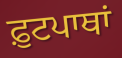
ਫ਼ੁਟਪਾਥਾਂ